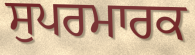
ਸੁਪਰਮਾਰਕ